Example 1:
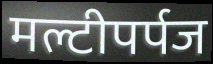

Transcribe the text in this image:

मल्टीपर्पज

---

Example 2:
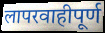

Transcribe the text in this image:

लापरवाहीपूर्ण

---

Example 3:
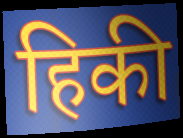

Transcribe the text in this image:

हिकी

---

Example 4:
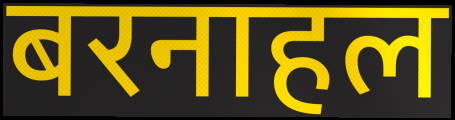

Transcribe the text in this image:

बरनाहल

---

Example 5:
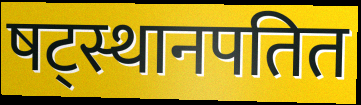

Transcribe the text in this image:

षट्स्थानपतित